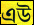
এউ